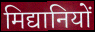
मिद्यानियों